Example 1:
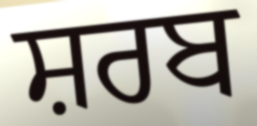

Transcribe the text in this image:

ਸ਼ਰਬ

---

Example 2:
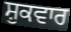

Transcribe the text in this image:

ਸ਼ੁਕਵਾਰ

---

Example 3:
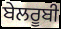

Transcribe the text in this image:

ਬੇਲਰੂਬੀ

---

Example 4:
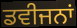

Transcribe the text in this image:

ਡਵੀਜਨਾਂ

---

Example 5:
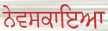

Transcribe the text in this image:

ਨੇਵਸਕਾਇਆ